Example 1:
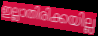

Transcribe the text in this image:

ഇല്ലാതിരിക്കയില്ല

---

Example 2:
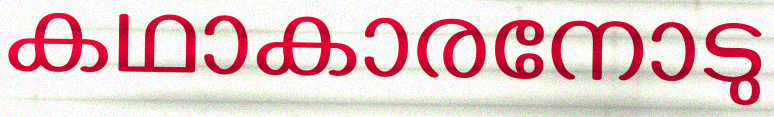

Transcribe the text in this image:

കഥാകാരനോടു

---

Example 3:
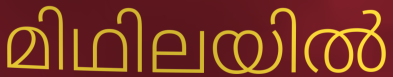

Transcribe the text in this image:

മിഥിലയിൽ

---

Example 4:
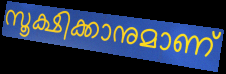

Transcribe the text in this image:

സൂക്ഷിക്കാനുമാണ്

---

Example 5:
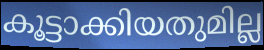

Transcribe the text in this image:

കൂട്ടാക്കിയതുമില്ല